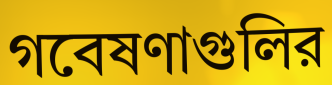
গবেষণাগুলির